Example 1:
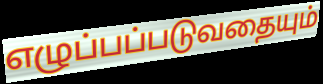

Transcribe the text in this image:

எழுப்பப்படுவதையும்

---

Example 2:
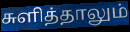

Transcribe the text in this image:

சுளித்தாலும்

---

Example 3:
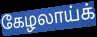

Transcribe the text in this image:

கேழலாய்க்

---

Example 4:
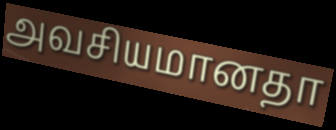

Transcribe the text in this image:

அவசியமானதா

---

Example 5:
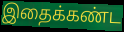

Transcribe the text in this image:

இதைக்கண்ட